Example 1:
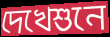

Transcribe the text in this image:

দেখেশুনে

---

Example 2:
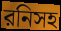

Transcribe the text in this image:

রনিসহ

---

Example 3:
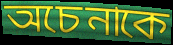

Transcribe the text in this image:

অচেনাকে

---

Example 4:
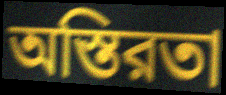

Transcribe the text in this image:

অস্তিরতা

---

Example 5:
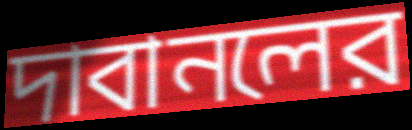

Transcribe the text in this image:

দাবানলের